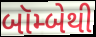
બૉમ્બેથી